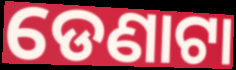
ଡେଣାଟା